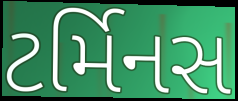
ટર્મિનસ